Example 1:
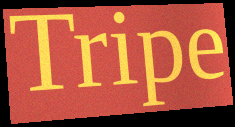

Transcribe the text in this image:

Tripe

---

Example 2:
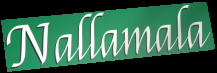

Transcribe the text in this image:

Nallamala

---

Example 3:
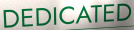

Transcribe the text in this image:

DEDICATED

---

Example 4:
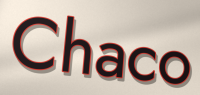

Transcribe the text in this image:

Chaco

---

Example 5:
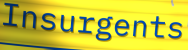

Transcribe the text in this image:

Insurgents